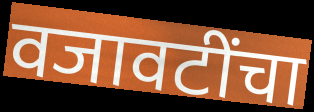
वजावटींचा